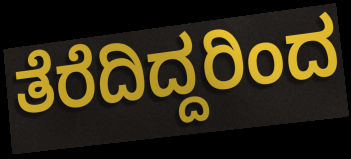
ತೆರೆದಿದ್ದರಿಂದ